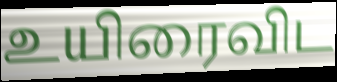
உயிரைவிட